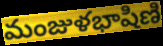
మంజుళభాషిణి